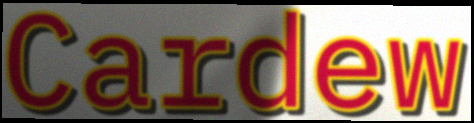
Cardew